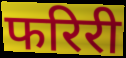
फरिरी